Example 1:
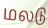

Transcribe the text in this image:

மலடு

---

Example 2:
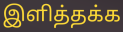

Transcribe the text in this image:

இளித்தக்க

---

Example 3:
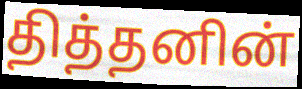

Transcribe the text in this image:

தித்தனின்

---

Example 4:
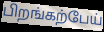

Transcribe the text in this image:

பிறங்கற்பேய்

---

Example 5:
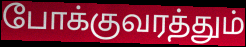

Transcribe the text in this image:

போக்குவரத்தும்